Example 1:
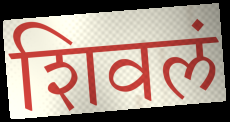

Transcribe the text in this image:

शिवलं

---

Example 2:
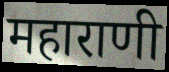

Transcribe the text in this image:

महाराणी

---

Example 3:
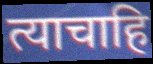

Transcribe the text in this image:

त्याचाहि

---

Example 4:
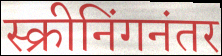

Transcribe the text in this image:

स्क्रीनिंगनंतर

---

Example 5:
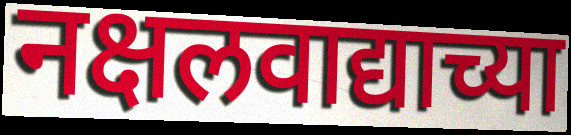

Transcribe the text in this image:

नक्षलवाद्याच्या